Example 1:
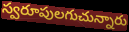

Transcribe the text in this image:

స్వరూపులగుచున్నారు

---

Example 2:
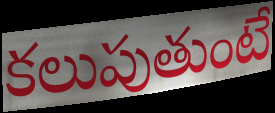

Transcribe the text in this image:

కలుపుతుంటే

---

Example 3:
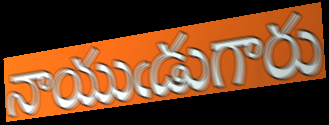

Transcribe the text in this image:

నాయుఁడుగారు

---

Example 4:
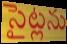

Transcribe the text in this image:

సైట్లను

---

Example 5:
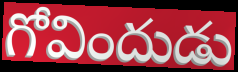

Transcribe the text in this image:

గోవిందుడు